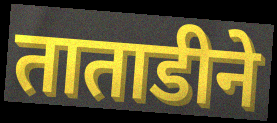
ताताडीने